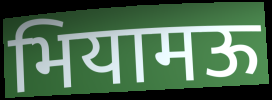
भियामऊ